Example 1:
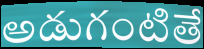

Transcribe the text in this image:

అడుగంటితే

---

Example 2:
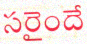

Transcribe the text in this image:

సరైందే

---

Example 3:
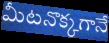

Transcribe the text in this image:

మీటనొక్కగానే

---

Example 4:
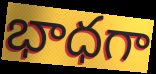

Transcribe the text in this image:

భాధగా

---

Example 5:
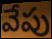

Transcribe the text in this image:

వేపు